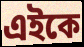
এইকে